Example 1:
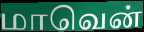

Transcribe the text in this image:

மாவென்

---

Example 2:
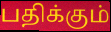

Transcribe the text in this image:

பதிக்கும்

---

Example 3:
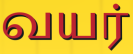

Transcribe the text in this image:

வயர்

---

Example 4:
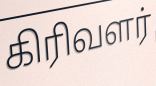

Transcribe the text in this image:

கிரிவளர்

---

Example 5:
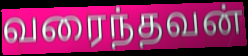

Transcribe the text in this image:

வரைந்தவன்